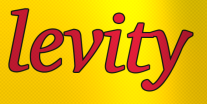
levity